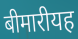
बीमारीयह